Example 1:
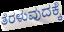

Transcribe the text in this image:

ತೆರಳುವುದಕ್ಕೆ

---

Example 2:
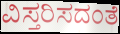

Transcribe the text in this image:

ವಿಸ್ತರಿಸದಂತೆ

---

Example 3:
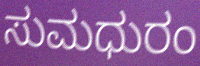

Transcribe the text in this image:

ಸುಮಧುರಂ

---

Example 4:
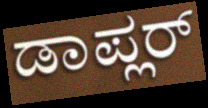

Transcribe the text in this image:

ಡಾಪ್ಲರ್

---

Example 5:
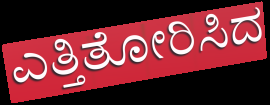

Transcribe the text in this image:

ಎತ್ತಿತೋರಿಸಿದ